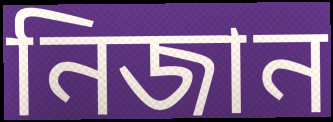
নিজান